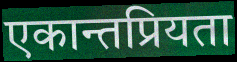
एकान्तप्रियता